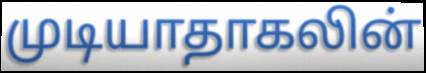
முடியாதாகலின்